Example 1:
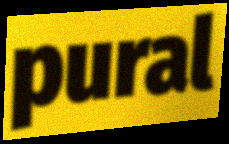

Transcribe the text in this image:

pural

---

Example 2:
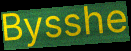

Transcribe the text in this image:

Bysshe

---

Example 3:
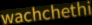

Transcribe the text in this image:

wachchethi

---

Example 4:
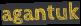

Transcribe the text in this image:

agantuk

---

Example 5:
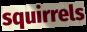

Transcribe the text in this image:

squirrels